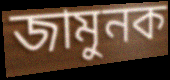
জামুনক